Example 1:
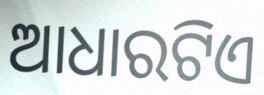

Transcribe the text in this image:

ଆଧାରଟିଏ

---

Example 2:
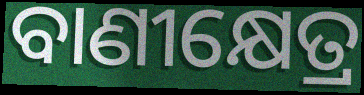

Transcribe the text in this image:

ବାଣୀକ୍ଷେତ୍ର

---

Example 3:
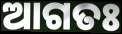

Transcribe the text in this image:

ଆଗତଃ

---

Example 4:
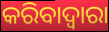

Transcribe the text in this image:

କରିବାଦ୍ବାରା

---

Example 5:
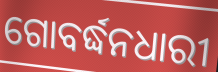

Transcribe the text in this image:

ଗୋବର୍ଦ୍ଧନଧାରୀ